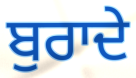
ਬੁਰਾਦੇ